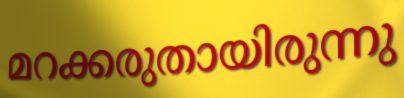
മറക്കരുതായിരുന്നു